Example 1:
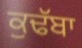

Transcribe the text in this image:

ਕੁਢੱਬਾ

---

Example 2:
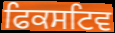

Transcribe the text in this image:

ਫਿਕਸਟਿਵ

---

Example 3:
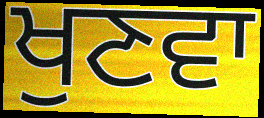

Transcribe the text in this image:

ਖੁਣਵਾ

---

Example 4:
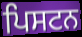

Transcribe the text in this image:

ਪਿਸਟਨ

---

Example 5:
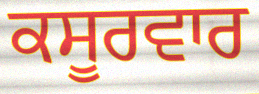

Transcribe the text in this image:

ਕਸੂਰਵਾਰ